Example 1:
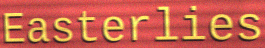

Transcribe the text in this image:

Easterlies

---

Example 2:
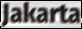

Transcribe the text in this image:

Jakarta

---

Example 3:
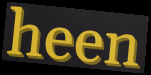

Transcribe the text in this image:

heen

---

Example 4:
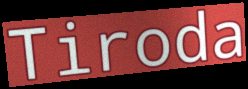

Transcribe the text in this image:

Tiroda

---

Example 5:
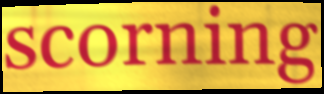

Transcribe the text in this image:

scorning